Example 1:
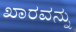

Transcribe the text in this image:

ಖಾರವನ್ನು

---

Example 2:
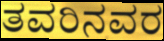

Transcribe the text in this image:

ತವರಿನವರ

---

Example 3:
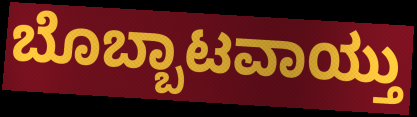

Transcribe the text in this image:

ಬೊಬ್ಬಾಟವಾಯ್ತು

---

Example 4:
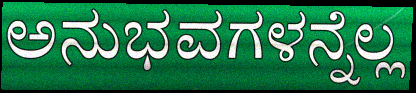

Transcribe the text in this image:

ಅನುಭವಗಳನ್ನೆಲ್ಲ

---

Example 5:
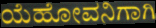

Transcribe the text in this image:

ಯೆಹೋವನಿಗಾಗಿ